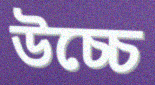
উচ্চে